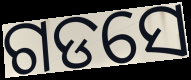
ଗଡସେ